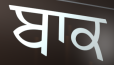
ਬਾਕ